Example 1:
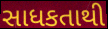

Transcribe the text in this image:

સાધકતાથી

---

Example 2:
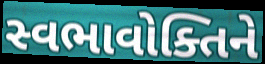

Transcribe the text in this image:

સ્વભાવોક્તિને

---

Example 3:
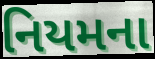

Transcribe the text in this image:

નિયમના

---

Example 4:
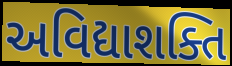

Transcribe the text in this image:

અવિદ્યાશક્તિ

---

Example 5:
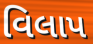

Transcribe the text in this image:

વિલાપ